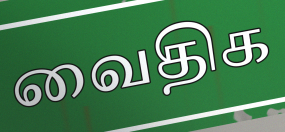
வைதிக